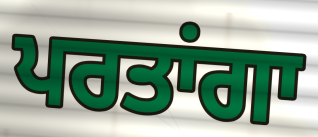
ਪਰਤਾਂਗਾ